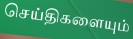
செய்திகளையும்